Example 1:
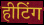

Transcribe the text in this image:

हीटिंग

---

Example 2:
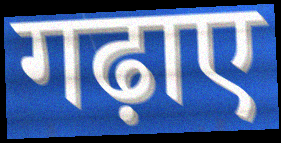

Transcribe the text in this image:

गढ़ाए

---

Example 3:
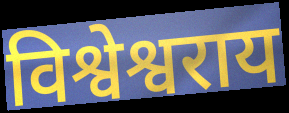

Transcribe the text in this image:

विश्वेश्वराय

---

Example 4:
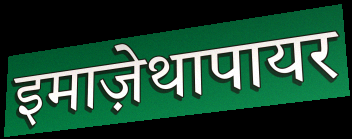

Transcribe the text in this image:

इमाज़ेथापायर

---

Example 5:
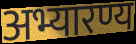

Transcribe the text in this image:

अभ्यारण्य